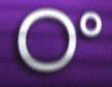
ଠଂ